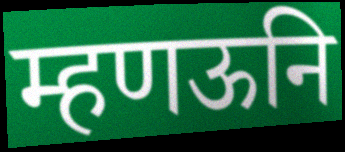
म्हणऊनि